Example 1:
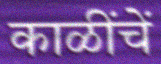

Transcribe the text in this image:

काळींचें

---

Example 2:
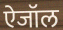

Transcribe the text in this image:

ऐजॉल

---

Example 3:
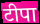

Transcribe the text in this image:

टीपा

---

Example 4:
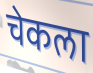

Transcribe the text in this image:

चेकला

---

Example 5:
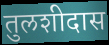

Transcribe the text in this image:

तुलशीदास